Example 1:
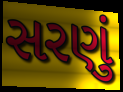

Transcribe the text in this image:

સરણું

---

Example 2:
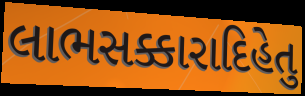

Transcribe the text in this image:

લાભસક્કારાદિહેતુ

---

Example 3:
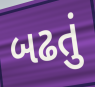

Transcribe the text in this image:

બઢતું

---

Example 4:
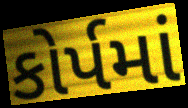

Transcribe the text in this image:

કોર્પમાં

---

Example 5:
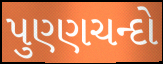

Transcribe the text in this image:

પુણ્ણચન્દો